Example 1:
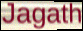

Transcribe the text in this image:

Jagath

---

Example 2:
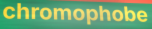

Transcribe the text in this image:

chromophobe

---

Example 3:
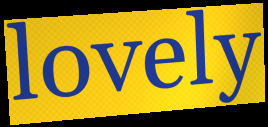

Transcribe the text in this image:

lovely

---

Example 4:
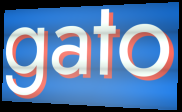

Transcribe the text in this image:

gato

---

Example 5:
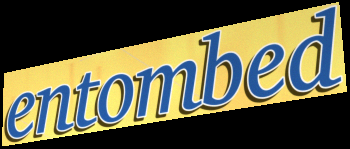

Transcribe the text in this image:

entombed